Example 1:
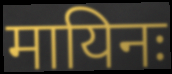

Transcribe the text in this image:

मायिनः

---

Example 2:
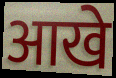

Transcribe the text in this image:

आखे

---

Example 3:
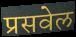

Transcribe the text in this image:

प्रसवेल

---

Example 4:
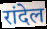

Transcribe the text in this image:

रांदेल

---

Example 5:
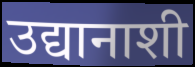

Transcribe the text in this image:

उद्यानाशी